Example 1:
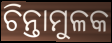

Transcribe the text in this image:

ଚିନ୍ତାମୁଳକ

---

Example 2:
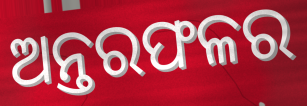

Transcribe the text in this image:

ଅନ୍ତରଫଳର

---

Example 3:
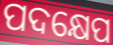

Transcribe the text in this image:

ପଦକ୍ଷେପ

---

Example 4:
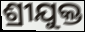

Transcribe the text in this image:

ଶ୍ରୀଯୁକ୍ତ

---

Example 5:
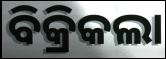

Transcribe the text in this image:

ବିକ୍ରିକଲା